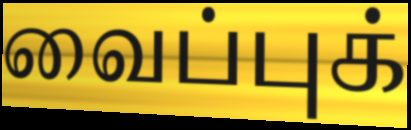
வைப்புக்